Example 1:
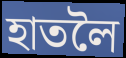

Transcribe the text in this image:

হাতলৈ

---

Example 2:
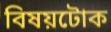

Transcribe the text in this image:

বিষয়টোক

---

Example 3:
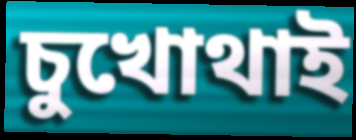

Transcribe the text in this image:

চুখোথাই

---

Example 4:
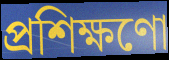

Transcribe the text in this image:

প্ৰশিক্ষণো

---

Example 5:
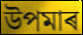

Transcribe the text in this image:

উপমাৰ